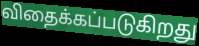
விதைக்கப்படுகிறது